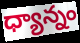
ధ్యాన్నం